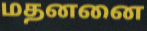
மதனனை